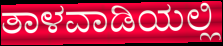
ತಾಳವಾಡಿಯಲ್ಲಿ